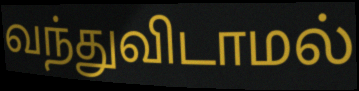
வந்துவிடாமல்